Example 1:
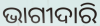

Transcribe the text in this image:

ଭାଗୀଦାରି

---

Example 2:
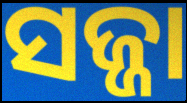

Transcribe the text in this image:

ସଜ୍ଜା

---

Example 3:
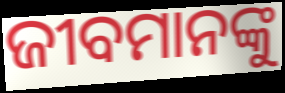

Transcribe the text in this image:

ଜୀବମାନଙ୍କୁ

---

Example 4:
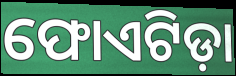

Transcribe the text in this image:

ଫୋଏଟିଡ଼ା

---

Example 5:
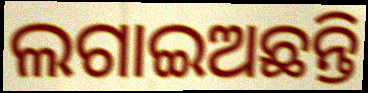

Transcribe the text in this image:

ଲଗାଇଅଛନ୍ତି